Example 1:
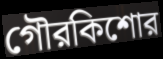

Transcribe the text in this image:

গৌরকিশোর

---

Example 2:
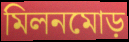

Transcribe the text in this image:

মিলনমোড়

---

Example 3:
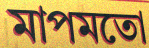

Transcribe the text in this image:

মাপমতো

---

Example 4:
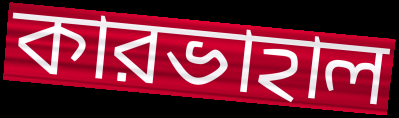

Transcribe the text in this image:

কারভাহাল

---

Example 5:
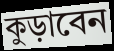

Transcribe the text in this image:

কুড়াবেন